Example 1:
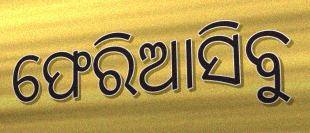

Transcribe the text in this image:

ଫେରିଆସିବୁ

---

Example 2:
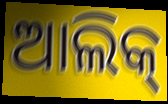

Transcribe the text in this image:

ଆଲିକ୍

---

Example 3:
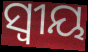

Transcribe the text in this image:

ସ୍ବୀୟ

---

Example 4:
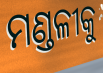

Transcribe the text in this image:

ମଣ୍ଡଳୀକୁ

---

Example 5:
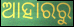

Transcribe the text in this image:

ଆହାରରୁ